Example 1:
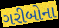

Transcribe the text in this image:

ગરીબોના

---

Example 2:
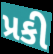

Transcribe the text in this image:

પ્રકી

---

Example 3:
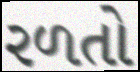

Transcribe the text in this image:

રળતો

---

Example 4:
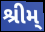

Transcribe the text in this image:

શ્રીમ્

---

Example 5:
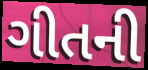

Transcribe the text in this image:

ગીતની